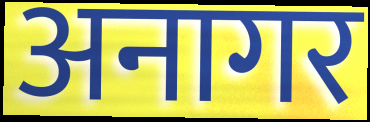
अनागर